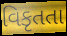
વિકૃતતા